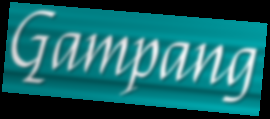
Gampang